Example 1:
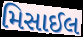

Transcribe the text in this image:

મિસાઈલ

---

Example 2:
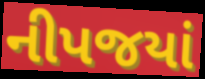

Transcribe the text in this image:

નીપજયાં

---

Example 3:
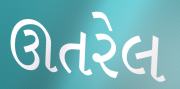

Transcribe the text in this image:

ઊતરેલ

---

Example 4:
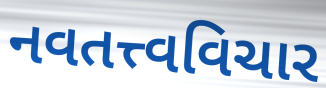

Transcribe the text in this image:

નવતત્ત્વવિચાર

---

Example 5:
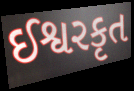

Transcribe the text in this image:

ઈશ્વરકૃત